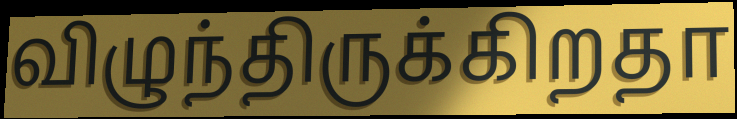
விழுந்திருக்கிறதா